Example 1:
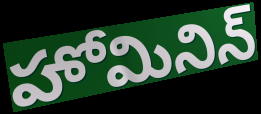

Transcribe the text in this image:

హోమినిన్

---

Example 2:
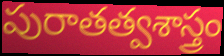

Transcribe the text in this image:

పురాతత్వశాస్త్రం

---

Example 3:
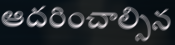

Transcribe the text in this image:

ఆదరించాల్సిన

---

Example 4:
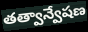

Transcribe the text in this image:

తత్వాన్వేషణ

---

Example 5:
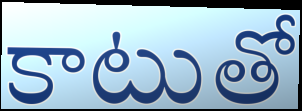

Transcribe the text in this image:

కాటుతో